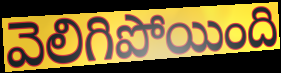
వెలిగిపోయింది